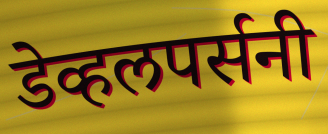
डेव्हलपर्सनी